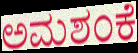
ಅಮಶಂಕೆ